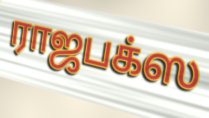
ராஜபக்ஸ